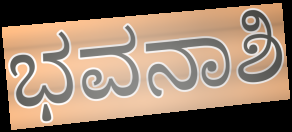
ಭವನಾಶಿ